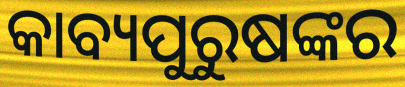
କାବ୍ୟପୁରୁଷଙ୍କର